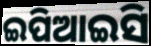
ଇପିଆଇସି